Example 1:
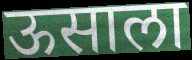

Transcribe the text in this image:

ऊसाला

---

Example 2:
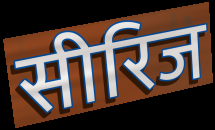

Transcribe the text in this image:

सीरिज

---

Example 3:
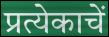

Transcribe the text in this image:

प्रत्येकाचें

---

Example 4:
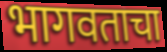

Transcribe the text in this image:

भागवताचा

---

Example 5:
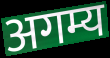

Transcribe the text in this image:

अगम्य